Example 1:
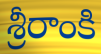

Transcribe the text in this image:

శ్రీరాంకి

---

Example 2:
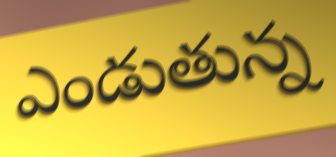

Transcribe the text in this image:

ఎండుతున్న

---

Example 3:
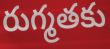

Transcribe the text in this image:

రుగ్మతకు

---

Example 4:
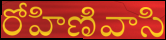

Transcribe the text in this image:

రోహిణివాసి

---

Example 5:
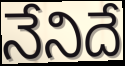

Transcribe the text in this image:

నేనిదే